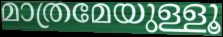
മാത്രമേയുള്ളൂ